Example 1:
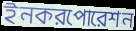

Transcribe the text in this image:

ইনকরপোরেশন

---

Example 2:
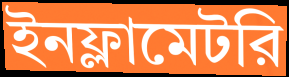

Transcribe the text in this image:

ইনফ্লামেটরি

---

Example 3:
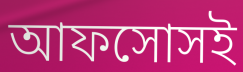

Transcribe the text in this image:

আফসোসই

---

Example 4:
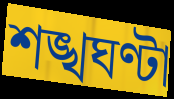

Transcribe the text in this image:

শঙ্খঘণ্টা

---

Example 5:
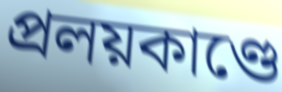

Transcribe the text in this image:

প্রলয়কাণ্ডে